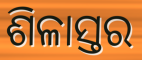
ଶିଳାସ୍ତର